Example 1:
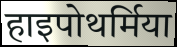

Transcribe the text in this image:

हाइपोथर्मिया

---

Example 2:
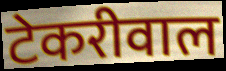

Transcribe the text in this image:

टेकरीवाल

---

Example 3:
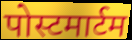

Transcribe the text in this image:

पोस्टमार्टम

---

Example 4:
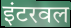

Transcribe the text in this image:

इंटरवल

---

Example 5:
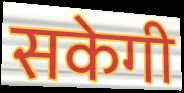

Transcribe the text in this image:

सकेगी